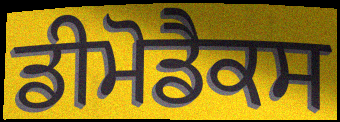
ਡੀਮੋਡੈਕਸ